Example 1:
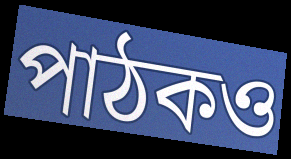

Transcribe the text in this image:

পাঠকও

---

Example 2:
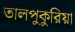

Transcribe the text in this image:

তালপুকুরিয়া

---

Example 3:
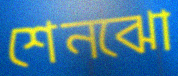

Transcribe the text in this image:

শেনঝো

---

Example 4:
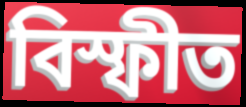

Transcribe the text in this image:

বিস্ফীত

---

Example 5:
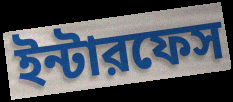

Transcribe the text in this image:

ইন্টারফেস